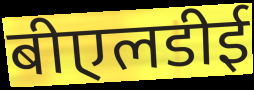
बीएलडीई